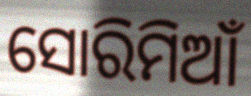
ସୋରିମିଆଁ